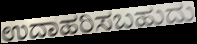
ಉದಾಹರಿಸಬಹುದು